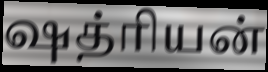
ஷத்ரியன்